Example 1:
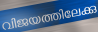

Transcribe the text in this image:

വിജയത്തിലേക്കു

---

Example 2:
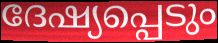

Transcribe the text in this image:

ദേഷ്യപ്പെടും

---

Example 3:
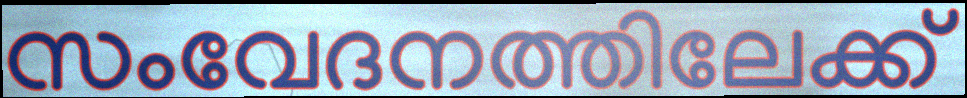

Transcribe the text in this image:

സംവേദനത്തിലേക്ക്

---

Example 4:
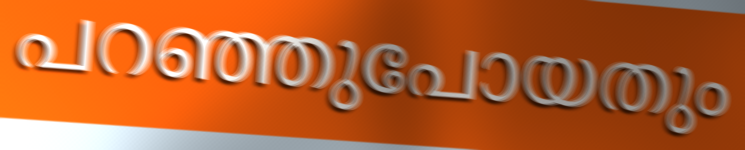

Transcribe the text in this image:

പറഞ്ഞുപോയതും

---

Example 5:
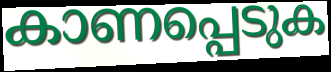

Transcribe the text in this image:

കാണപ്പെടുക